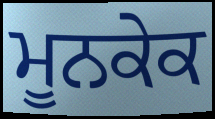
ਮੂਨਕੇਕ